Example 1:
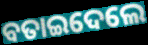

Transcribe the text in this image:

ବତାଇଦେଲେ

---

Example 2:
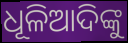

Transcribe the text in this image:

ଧୂଳିଆଦିଙ୍କୁ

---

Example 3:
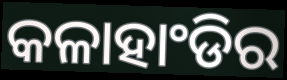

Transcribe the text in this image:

କଳାହାଂଡିର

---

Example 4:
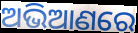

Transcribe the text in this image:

ଅଭିଆଣରେ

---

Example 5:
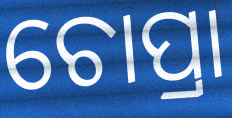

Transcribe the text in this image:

ଚୋପ୍ରା